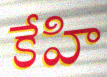
కేహి